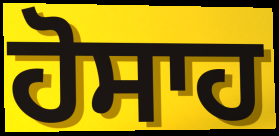
ਹੋਸਾਹ